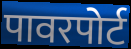
पावरपोर्ट